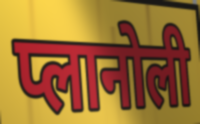
प्लानोली